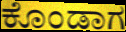
ಕೊಂಡಾಗ